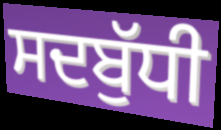
ਸਦਬੁੱਧੀ